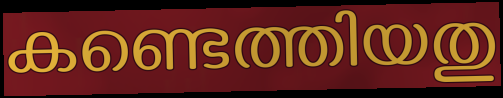
കണ്ടെത്തിയതു